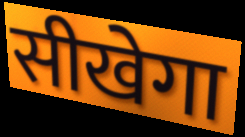
सीखेगा